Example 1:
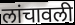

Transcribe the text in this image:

लांचावली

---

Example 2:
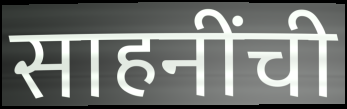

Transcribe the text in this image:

साहनींची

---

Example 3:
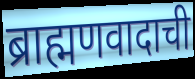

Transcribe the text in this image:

ब्राह्मणवादाची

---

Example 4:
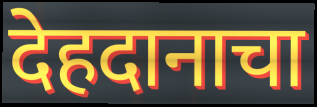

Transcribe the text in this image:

देहदानाचा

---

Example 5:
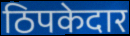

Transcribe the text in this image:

ठिपकेदार